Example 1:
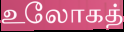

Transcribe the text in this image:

உலோகத்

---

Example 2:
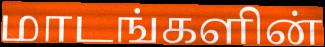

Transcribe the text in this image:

மாடங்களின்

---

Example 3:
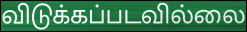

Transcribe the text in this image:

விடுக்கப்படவில்லை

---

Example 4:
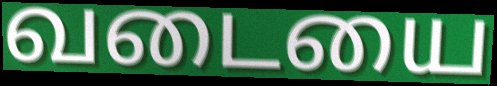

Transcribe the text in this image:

வடையை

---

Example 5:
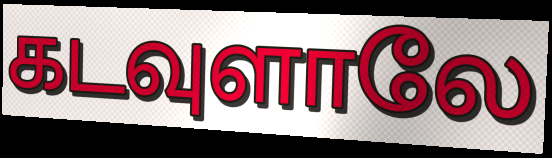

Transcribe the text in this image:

கடவுளாலே